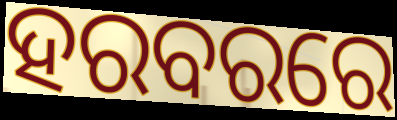
ହରବରରେ